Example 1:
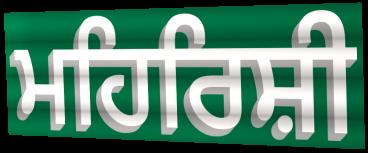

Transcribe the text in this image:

ਮਹਿਰਿਸ਼ੀ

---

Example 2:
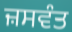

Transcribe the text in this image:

ਜ਼ਸਵੰਤ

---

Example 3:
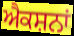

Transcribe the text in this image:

ਐਕਸ਼ਨਾਂ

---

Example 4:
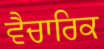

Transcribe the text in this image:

ਵੈਚਾਰਿਕ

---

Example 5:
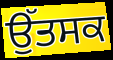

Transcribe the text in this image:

ਉੱਤਸਕ